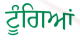
ਟੂੰਗਿਆਂ